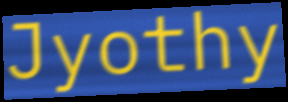
Jyothy